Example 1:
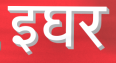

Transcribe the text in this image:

इघर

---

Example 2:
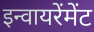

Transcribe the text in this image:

इन्वायरेंमेंट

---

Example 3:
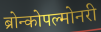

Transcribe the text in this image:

ब्रोन्कोपल्मोनरी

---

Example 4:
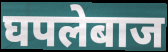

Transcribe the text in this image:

घपलेबाज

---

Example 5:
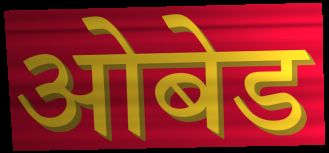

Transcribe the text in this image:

ओबेड